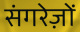
संगरेज़ों